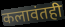
कलावंतही